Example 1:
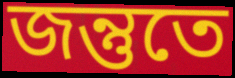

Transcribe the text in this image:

জন্তুতে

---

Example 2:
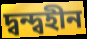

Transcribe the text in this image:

দ্বন্দ্বহীন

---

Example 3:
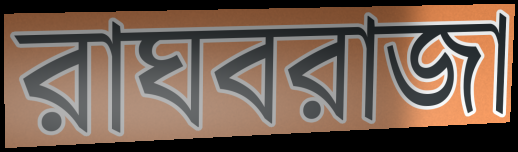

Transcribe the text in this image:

রাঘবরাজা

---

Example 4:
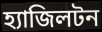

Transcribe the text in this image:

হ্যাজিলটন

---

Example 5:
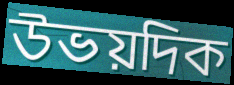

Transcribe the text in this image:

উভয়দিক